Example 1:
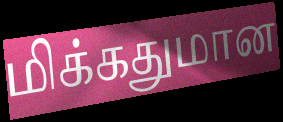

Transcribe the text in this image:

மிக்கதுமான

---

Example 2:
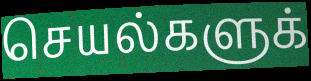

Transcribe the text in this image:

செயல்களுக்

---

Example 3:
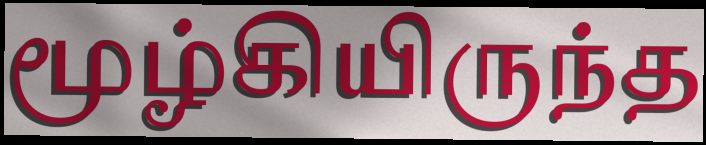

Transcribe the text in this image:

மூழ்கியிருந்த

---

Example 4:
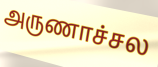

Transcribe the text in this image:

அருணாச்சல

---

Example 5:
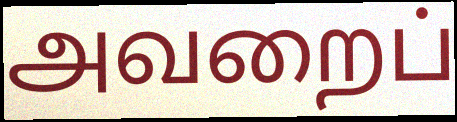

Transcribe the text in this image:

அவறைப்